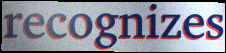
recognizes